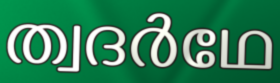
ത്വദർഥേ